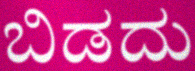
ಬಿಡದು